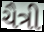
ચૈત્રી